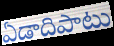
ఏడాదిపాటు